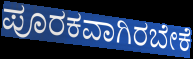
ಪೂರಕವಾಗಿರಬೇಕೆ